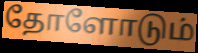
தோளோடும்